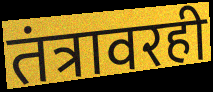
तंत्रावरही